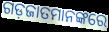
ଗଡ଼ଜାତମାନଙ୍କରେ